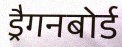
ड्रैगनबोर्ड